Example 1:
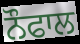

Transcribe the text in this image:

ਨੌਫਾਲ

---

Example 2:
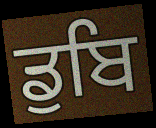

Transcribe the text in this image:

ਡੁਬਿ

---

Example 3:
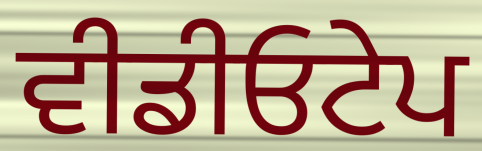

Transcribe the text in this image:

ਵੀਡੀਓਟੇਪ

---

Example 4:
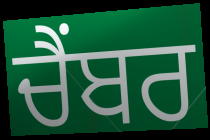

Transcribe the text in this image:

ਚੈਂਬਰ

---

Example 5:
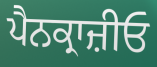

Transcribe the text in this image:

ਪੈਨਕ੍ਰਾਜ਼ੀਓ